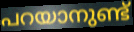
പറയാനുണ്ട്